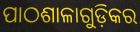
ପାଠଶାଳାଗୁଡ଼ିକର